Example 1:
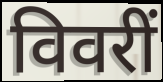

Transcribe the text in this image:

विवरीं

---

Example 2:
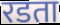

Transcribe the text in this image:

रडता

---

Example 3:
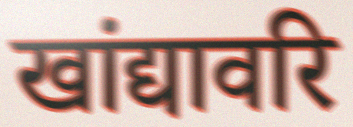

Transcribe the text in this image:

खांद्यावरि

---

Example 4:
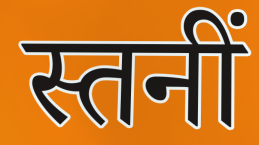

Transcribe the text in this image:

स्तनीं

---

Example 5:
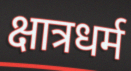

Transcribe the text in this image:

क्षात्रधर्म